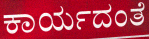
ಕಾರ್ಯದಂತೆ